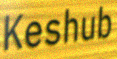
Keshub